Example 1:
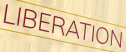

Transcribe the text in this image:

LIBERATION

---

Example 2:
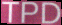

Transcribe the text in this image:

TPD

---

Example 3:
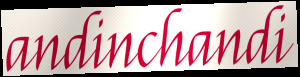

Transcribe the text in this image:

andinchandi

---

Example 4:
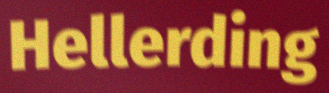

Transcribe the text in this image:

Hellerding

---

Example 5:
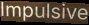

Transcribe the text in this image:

Impulsive